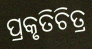
ପ୍ରକୃତିଚିତ୍ର